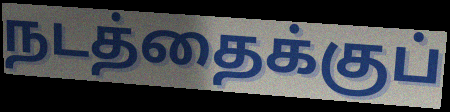
நடத்தைக்குப்